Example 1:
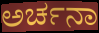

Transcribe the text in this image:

ಅರ್ಚನಾ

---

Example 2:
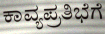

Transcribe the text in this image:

ಕಾವ್ಯಪ್ರತಿಭೆಗೆ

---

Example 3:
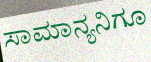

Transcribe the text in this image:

ಸಾಮಾನ್ಯನಿಗೂ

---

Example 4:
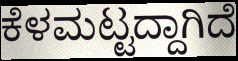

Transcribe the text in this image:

ಕೆಳಮಟ್ಟದ್ದಾಗಿದೆ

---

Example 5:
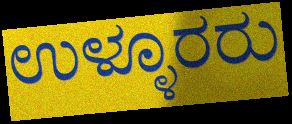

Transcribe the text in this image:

ಉಳ್ಳೂರರು